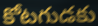
కోటగుడకు